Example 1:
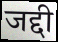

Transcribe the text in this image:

जद्दी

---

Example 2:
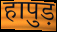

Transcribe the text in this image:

हापुड़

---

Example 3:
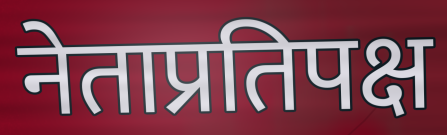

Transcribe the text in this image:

नेताप्रतिपक्ष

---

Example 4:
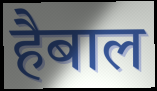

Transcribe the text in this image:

हैबाल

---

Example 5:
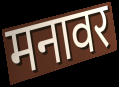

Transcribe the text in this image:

मनावर